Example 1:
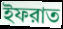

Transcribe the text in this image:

ইফরাত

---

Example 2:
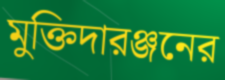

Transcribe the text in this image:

মুক্তিদারঞ্জনের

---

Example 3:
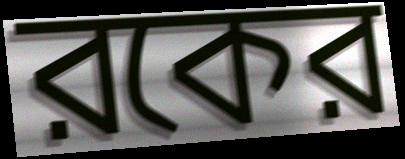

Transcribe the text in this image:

রকের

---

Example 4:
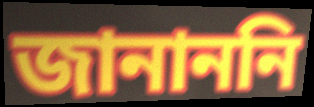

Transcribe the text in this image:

জানাননি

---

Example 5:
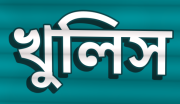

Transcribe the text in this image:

খুলিস